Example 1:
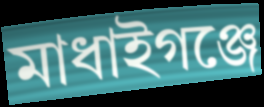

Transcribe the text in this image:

মাধাইগঞ্জে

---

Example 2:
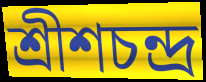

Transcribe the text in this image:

শ্রীশচন্দ্র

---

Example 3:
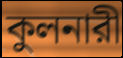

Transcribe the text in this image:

কুলনারী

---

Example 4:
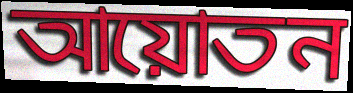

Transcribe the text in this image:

আয়োতন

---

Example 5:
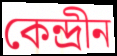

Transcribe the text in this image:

কেন্দ্রীন